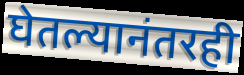
घेतल्यानंतरही